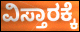
ವಿಸ್ತಾರಕ್ಕೆ